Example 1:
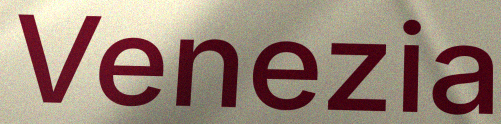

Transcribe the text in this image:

Venezia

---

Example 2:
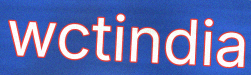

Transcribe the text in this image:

wctindia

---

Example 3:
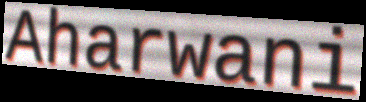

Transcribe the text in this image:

Aharwani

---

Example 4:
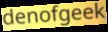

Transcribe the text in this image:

denofgeek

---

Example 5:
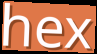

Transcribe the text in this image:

hex